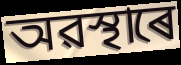
অৱস্থাৰে